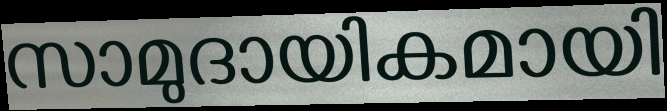
സാമുദായികമായി